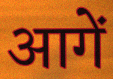
आगें